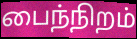
பைந்நிறம்